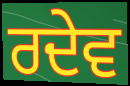
ਰਦੇਵ